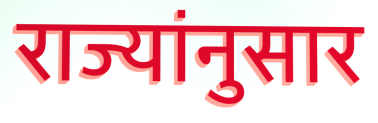
राज्यांनुसार